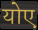
योए